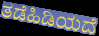
ತಡೆಹಿಡಿಯದೆ